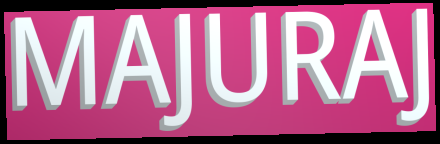
MAJURAJ